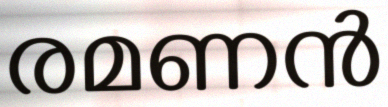
രമണൻ